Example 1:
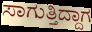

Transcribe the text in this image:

ಸಾಗುತ್ತಿದ್ದಾಗ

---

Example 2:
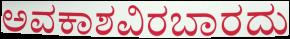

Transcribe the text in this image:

ಅವಕಾಶವಿರಬಾರದು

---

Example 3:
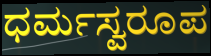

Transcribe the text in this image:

ಧರ್ಮಸ್ವರೂಪ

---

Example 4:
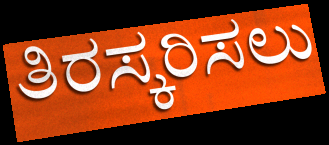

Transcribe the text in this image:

ತಿರಸ್ಕರಿಸಲು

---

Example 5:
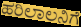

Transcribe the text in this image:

ಹರಿಲಾಲನಿಗೆ